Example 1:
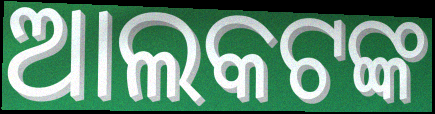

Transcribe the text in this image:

ଆଲକଟଙ୍କ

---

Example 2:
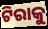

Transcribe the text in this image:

ଟିରାକୁ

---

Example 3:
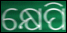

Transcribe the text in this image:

କ୍ଷେପି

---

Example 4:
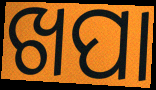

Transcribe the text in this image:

ଖପା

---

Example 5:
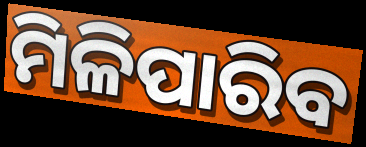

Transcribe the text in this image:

ମିଳିପାରିବ